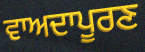
ਵਾਅਦਾਪੂਰਣ